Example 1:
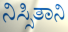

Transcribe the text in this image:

ನಿಸ್ಸಿತಾನಿ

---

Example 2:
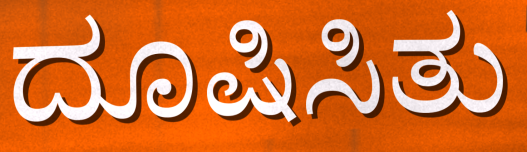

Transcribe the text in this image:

ದೂಷಿಸಿತು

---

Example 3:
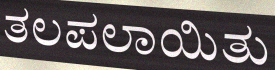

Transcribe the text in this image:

ತಲಪಲಾಯಿತು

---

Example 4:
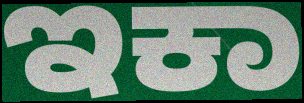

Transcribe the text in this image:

ಇಕಾ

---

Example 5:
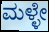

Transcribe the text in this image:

ಮಳ್ಳೇ